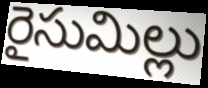
రైసుమిల్లు